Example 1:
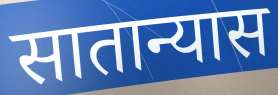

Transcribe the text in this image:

सातान्यास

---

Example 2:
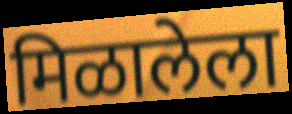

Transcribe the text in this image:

मिळालेला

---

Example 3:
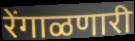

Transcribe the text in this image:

रेंगाळणारी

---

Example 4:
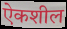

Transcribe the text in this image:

ऐकशील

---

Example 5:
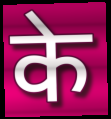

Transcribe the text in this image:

के